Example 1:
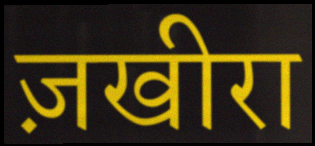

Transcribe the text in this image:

ज़खीरा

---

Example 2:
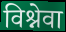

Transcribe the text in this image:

विश्नेवा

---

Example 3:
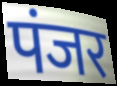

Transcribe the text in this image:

पंजर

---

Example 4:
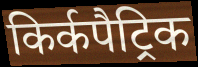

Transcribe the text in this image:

किर्कपैट्रिक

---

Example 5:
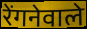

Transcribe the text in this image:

रेंगनेवाले